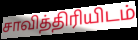
சாவித்திரியிடம்